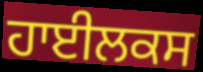
ਹਾਈਲਕਸ